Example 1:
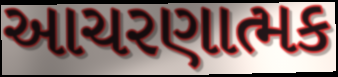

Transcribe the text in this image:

આચરણાત્મક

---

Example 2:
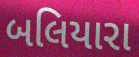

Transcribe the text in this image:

બલિયારા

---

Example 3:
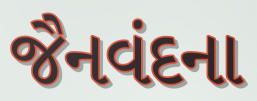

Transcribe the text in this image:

જૈનવંદના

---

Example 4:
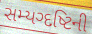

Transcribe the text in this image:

સમ્યગ્દષ્ટિની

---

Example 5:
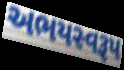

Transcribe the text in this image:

અભયસ્વરૂપ